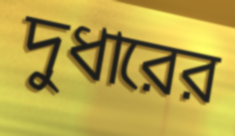
দুধারের